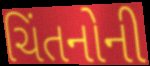
ચિંતનોની